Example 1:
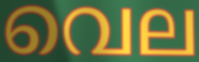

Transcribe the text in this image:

വെല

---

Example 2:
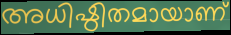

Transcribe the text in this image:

അധിഷ്ഠിതമായാണ്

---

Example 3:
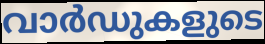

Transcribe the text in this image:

വാർഡുകളുടെ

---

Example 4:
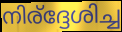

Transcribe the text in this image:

നിര്ദ്ദേശിച്ച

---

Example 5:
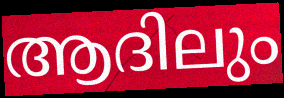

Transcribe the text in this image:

ആദിലും